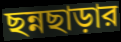
ছন্নছাড়ার